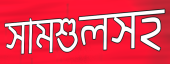
সামশুলসহ